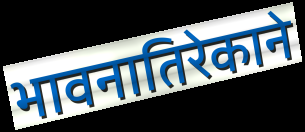
भावनातिरेकाने